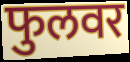
फुलवर